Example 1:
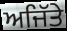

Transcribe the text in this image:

ਅਜਿੱਤੇ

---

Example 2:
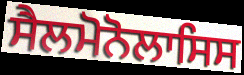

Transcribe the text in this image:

ਸੈਲਮੋਨੋਲਾਸਿਸ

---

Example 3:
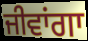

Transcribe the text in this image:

ਜੀਵਾਂਗਾ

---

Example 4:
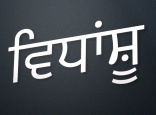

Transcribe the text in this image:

ਵਿਧਾਂਸ਼ੂ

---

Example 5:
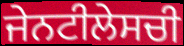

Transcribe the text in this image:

ਜੇਨਟੀਲੇਸਚੀ